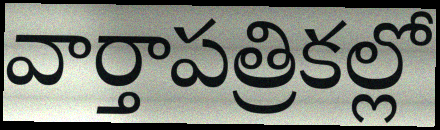
వార్తాపత్రికల్లో